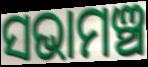
ସଭାମଞ୍ଚ